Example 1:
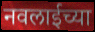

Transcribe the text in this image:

नवलाईच्या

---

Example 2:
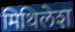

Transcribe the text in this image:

मिथिलेश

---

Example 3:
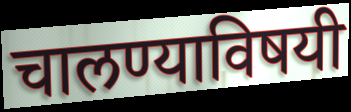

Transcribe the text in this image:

चालण्याविषयी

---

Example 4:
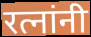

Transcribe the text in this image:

रत्नांनी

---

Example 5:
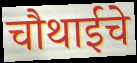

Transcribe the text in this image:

चौथाईचे